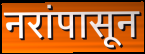
नरांपासून